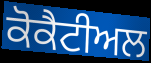
ਕੋਕੈਟੀਅਲ